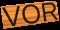
VOR